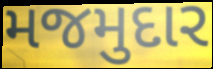
મજમુદાર